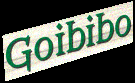
Goibibo